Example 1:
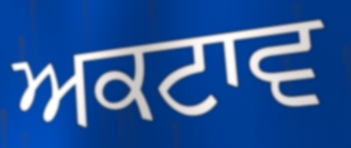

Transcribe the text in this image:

ਅਕਟਾਵ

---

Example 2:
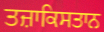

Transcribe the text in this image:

ਤਜ਼ਾਕਿਸਤਾਨ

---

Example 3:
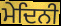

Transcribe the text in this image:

ਮੇਦਿਨੀ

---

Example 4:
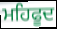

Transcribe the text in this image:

ਮਹਿਫੂਦ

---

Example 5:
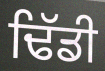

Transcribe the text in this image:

ਢਿੱਡੀ